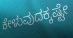
ಕೇಳುವುದಕ್ಕಷ್ಟೇ